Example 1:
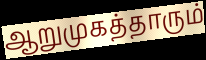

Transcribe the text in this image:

ஆறுமுகத்தாரும்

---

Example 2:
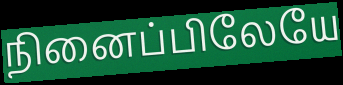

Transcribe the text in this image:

நினைப்பிலேயே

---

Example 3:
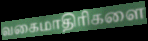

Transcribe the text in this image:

வகைமாதிரிகளை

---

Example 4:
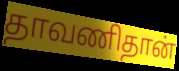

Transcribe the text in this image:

தாவணிதான்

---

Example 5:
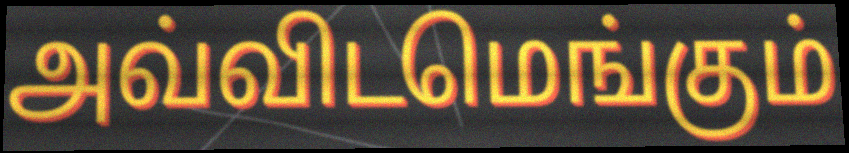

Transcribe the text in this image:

அவ்விடமெங்கும்